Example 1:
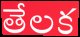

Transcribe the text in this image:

తేలక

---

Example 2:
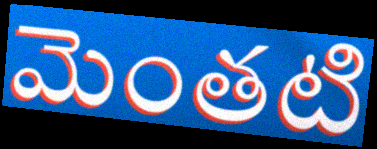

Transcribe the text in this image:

మెంతటి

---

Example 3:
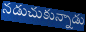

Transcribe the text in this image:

నడుచుకున్నాడు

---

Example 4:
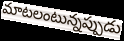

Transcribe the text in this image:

మాటలంటున్నప్పుడు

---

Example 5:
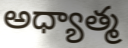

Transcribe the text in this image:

అధ్యాత్మ